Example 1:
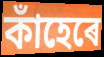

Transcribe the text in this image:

কাঁহেৰে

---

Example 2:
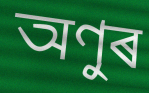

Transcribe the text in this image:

অণুৰ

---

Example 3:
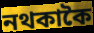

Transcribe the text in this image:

নথকাকৈ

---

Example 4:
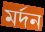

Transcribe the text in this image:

মৰ্দন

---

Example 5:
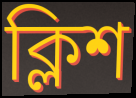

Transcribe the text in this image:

ক্লিশ